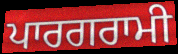
ਪਾਰਗਰਾਮੀ